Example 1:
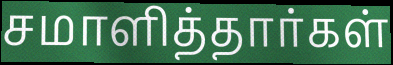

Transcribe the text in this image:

சமாளித்தார்கள்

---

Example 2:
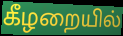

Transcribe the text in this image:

கீழறையில்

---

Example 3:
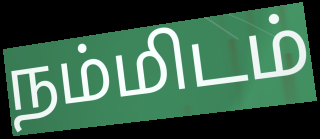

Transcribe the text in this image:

நம்மிடம்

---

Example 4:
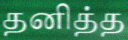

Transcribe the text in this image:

தனித்த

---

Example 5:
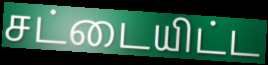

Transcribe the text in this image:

சட்டையிட்ட